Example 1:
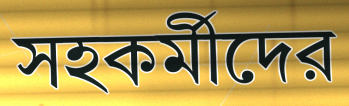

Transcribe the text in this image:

সহকর্মীদের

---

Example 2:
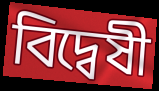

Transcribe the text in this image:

বিদ্বেষী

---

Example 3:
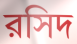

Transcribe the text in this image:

রসিদ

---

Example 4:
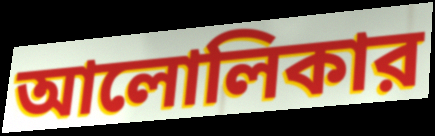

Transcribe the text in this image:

আলোলিকার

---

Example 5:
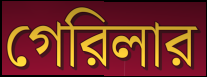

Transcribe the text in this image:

গেরিলার